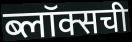
ब्लॉक्सची